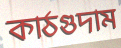
কাঠগুদাম